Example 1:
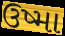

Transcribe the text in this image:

ઉષ્મા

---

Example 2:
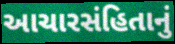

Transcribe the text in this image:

આચારસંહિતાનું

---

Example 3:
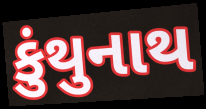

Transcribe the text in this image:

કુંથુનાથ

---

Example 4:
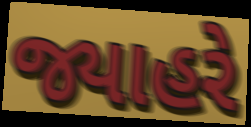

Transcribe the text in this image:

જ્યાહરે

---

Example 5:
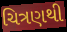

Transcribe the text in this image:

ચિત્રણથી